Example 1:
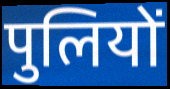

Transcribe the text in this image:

पुलियों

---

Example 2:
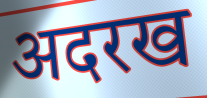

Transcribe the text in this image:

अदरख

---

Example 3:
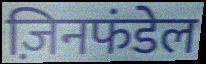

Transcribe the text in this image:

ज़िनफंडेल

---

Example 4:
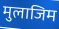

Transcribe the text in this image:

मुलाजिम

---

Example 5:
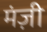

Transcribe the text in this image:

मंज़ी